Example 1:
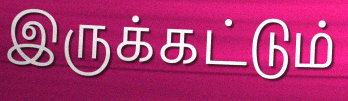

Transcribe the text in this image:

இருக்கட்டும்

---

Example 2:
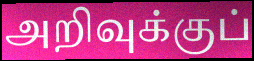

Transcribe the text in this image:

அறிவுக்குப்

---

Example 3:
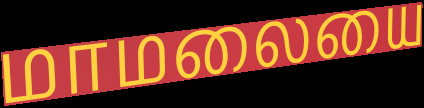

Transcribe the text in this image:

மாமலையை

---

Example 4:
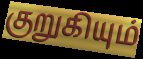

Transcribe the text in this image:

குறுகியும்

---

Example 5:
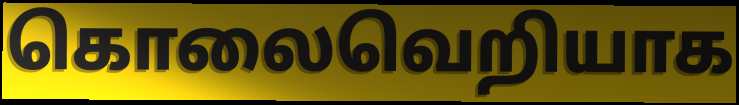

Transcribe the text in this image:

கொலைவெறியாக